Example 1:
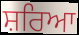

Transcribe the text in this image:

ਸ਼ਰਿਆ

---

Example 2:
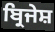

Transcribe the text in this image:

ਬ੍ਰਿਜੇਸ਼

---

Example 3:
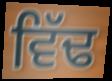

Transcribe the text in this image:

ਵਿੱਢ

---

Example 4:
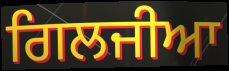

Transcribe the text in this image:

ਗਿਲਜੀਆ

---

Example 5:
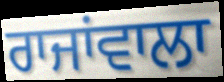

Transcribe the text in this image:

ਰਾਜਾਂਵਾਲਾ